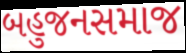
બહુજનસમાજ